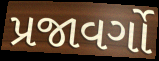
પ્રજાવર્ગો